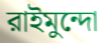
রাইমুন্দো